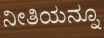
ನೀತಿಯನ್ನೂ